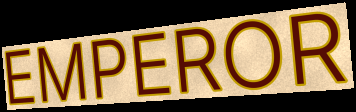
EMPEROR